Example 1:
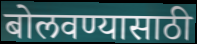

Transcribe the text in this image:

बोलवण्यासाठी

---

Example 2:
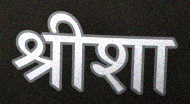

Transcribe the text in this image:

श्रीशा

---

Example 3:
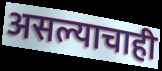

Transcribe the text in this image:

असल्याचाही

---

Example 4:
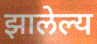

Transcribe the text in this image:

झालेल्य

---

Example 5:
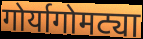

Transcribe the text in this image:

गोर्यागोमट्या